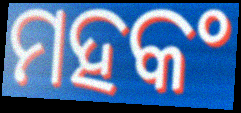
ମହକଂ